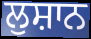
ਲੁਸ਼ਾਨ